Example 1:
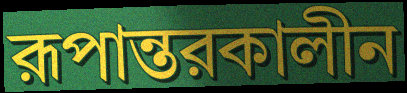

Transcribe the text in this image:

রূপান্তরকালীন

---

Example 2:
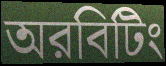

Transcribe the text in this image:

অরবিটিং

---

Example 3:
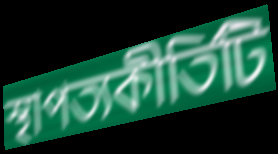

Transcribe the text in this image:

স্থাপত্যকীর্তিটি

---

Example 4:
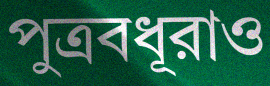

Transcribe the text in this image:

পুত্রবধূরাও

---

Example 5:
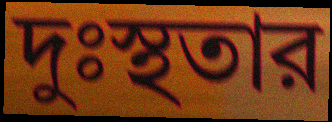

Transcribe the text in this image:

দুঃস্থতার